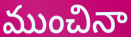
ముంచినా